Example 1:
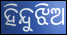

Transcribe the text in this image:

ହିନ୍ଦୁଝିଅ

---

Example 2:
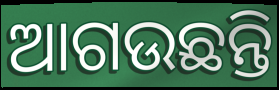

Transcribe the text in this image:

ଆଗଉଛନ୍ତି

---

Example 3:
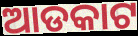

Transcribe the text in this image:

ଆଡକାଟ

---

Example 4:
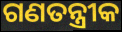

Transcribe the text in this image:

ଗଣତନ୍ତ୍ରୀକ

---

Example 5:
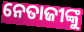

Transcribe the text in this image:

ନେତାଜୀଙ୍କୁ